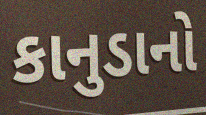
કાનુડાનો